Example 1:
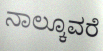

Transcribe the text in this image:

ನಾಲ್ಕೂವರೆ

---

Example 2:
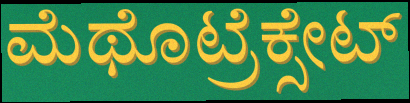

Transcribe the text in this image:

ಮೆಥೊಟ್ರೆಕ್ಸೇಟ್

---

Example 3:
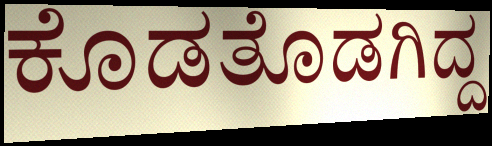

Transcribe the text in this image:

ಕೊಡತೊಡಗಿದ್ದ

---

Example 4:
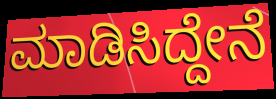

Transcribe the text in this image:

ಮಾಡಿಸಿದ್ದೇನೆ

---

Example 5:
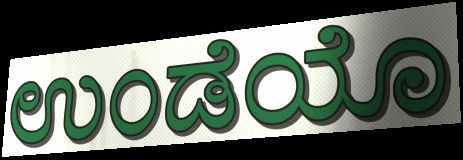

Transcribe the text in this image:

ಉಂಡೆಯೊ